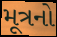
મૂત્રનો